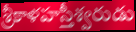
శ్రీకాళహస్తీశ్వరుడు